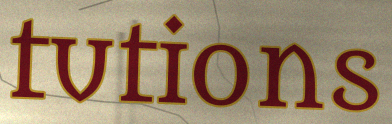
tutions